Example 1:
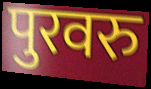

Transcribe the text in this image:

पुरवरु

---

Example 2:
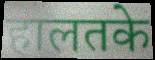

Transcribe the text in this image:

हालतके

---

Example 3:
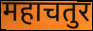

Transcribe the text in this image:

महाचतुर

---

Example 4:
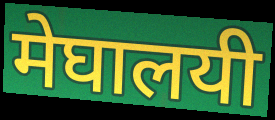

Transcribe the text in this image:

मेघालयी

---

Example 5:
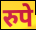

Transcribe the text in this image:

रुपे